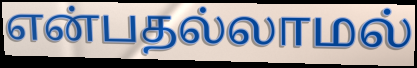
என்பதல்லாமல்